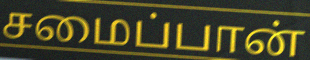
சமைப்பான்